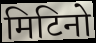
मिटिनो